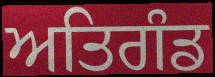
ਅਤਿਗੰਡ